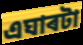
এঘাৰটা